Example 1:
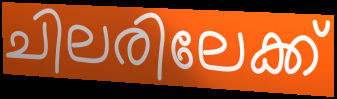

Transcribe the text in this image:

ചിലരിലേക്ക്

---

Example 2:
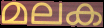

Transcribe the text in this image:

മലക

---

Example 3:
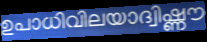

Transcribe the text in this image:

ഉപാധിവിലയാദ്വിഷ്ണൗ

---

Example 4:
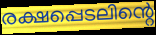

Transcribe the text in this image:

രക്ഷപ്പെടലിന്റെ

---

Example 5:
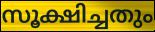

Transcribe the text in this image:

സൂക്ഷിച്ചതും